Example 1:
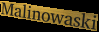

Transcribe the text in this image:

Malinowaski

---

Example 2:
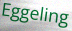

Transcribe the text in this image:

Eggeling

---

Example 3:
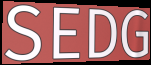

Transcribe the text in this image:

SEDG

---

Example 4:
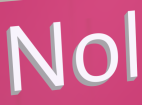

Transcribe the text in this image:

Nol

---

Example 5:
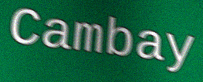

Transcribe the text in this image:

Cambay